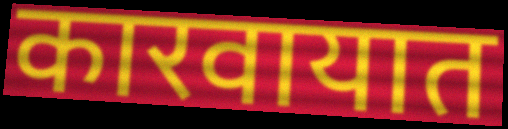
कारवायात